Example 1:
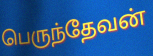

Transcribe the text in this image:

பெருந்தேவன்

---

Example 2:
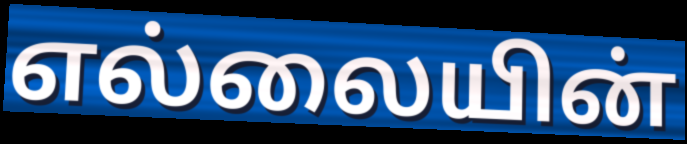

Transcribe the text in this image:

எல்லையின்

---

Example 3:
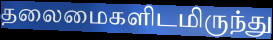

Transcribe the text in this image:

தலைமைகளிடமிருந்து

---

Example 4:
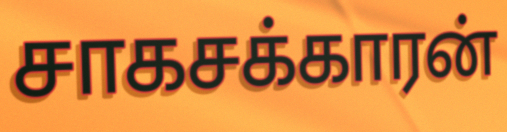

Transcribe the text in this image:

சாகசக்காரன்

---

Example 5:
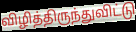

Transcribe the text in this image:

விழித்திருந்துவிட்டு